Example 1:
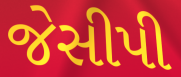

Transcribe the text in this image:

જેસીપી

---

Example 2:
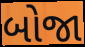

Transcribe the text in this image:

બોજા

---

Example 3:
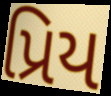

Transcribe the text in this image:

પ્રિય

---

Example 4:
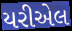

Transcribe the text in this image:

યરીએલ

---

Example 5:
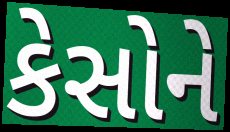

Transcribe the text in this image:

કેસોને